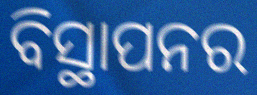
ବିସ୍ଥାପନର